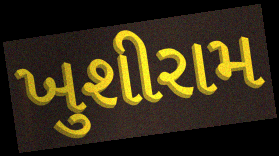
ખુશીરામ